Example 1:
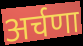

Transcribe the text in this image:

अर्चणा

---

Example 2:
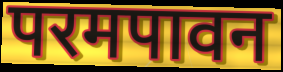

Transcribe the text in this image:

परमपावन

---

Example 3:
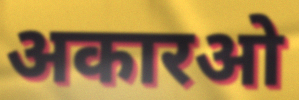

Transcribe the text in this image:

अकारओ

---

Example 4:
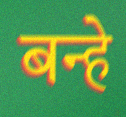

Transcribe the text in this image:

बन्हे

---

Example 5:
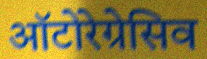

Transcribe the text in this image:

ऑटोरेग्रेसिव